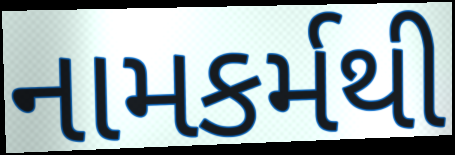
નામકર્મથી